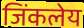
जिंकलेय